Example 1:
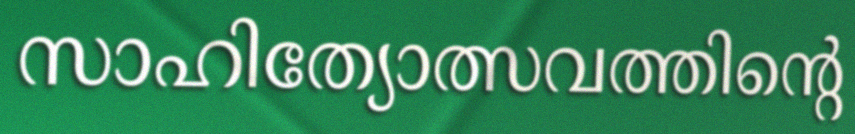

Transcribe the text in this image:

സാഹിത്യോത്സവത്തിന്റെ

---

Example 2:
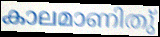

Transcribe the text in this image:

കാലമാണിതു്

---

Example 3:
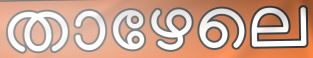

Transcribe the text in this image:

താഴേലെ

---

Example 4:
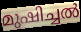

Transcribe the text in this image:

മുഷിച്ചൽ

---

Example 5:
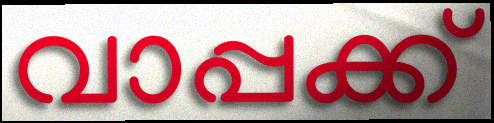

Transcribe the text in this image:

വാപ്പക്ക്